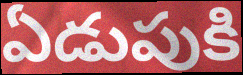
ఏడుపుకి